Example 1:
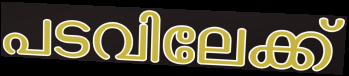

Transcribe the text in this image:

പടവിലേക്ക്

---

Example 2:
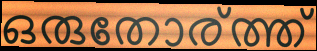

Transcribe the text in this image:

ഒരുതോര്ത്ത്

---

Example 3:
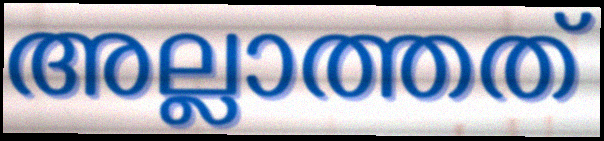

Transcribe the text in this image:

അല്ലാത്തത്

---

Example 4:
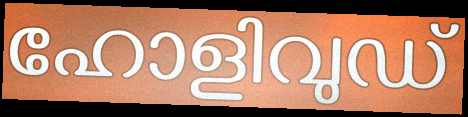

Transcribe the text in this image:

ഹോളിവുഡ്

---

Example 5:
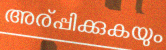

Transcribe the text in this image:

അര്പ്പിക്കുകയും